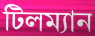
টিলম্যান